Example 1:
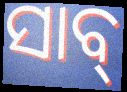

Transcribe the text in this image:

ସାବ୍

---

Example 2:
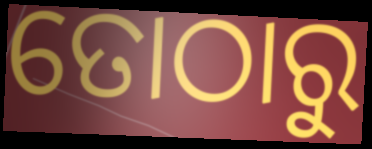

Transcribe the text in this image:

ତୋଠାରୁ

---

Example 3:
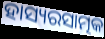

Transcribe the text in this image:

ହାସ୍ୟରସାତ୍ମକ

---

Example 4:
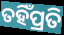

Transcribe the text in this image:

ତହିଁପ୍ରତି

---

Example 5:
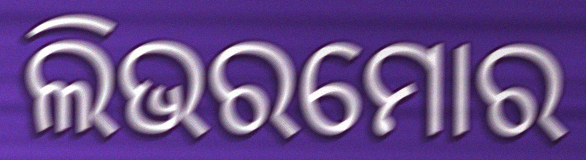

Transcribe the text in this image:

ଲିଭରମୋର